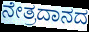
ನೇತ್ರದಾನದ